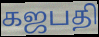
கஜபதி